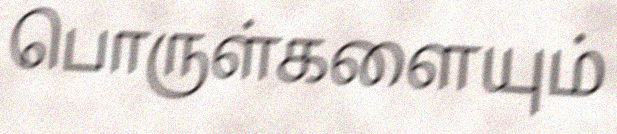
பொருள்களையும்